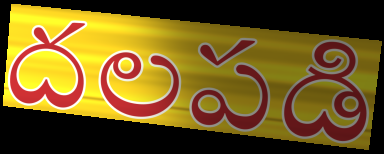
దలపడి